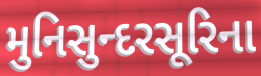
મુનિસુન્દરસૂરિના